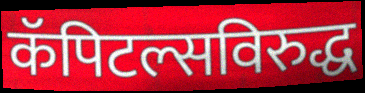
कॅपिटल्सविरुद्ध